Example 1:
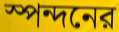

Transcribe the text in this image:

স্পন্দনের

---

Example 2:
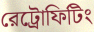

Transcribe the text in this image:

রেট্রোফিটিং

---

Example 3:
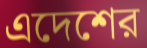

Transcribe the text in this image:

এদেশের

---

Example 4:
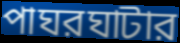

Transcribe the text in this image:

পাঘরঘাটার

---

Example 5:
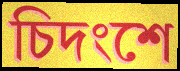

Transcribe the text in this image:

চিদংশে